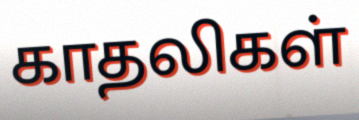
காதலிகள்